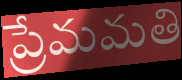
ప్రేమమతి